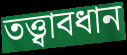
তত্ত্বাবধান